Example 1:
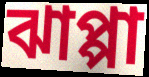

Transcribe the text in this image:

ঝাপ্পা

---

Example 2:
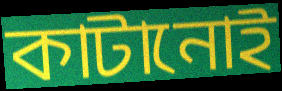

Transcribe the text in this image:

কাটানোই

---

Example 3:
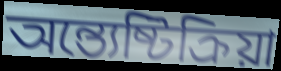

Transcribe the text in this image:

অন্ত্যেষ্টিক্রিয়া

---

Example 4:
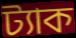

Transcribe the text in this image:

ট্যাক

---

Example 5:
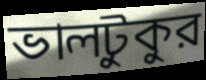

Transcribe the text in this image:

ভালটুকুর